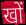
खों